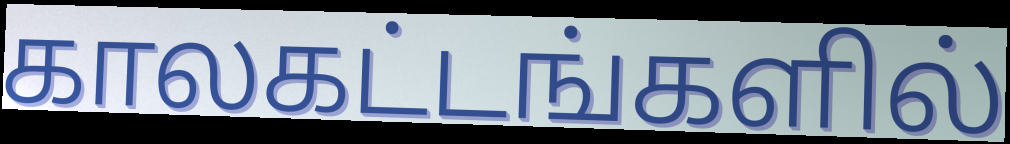
காலகட்டங்களில்